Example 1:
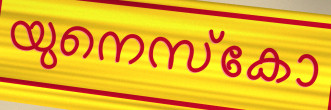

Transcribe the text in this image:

യുനെസ്കോ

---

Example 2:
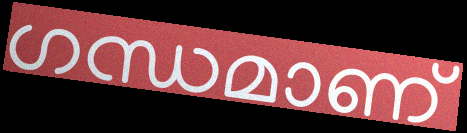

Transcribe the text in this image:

ഗന്ധമാണ്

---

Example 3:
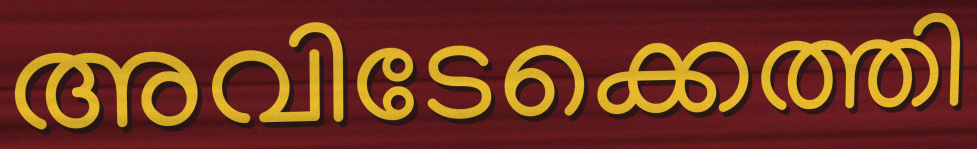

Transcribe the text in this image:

അവിടേക്കെത്തി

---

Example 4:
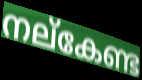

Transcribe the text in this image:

നല്കേണ്ട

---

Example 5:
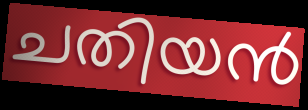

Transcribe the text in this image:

ചതിയൻ